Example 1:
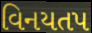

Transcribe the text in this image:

વિનયતપ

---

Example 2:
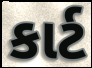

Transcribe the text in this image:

કાર્ટ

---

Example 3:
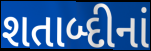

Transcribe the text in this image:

શતાબ્દીનાં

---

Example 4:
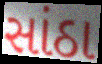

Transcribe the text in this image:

સાંઠા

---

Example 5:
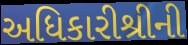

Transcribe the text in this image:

અધિકારીશ્રીની